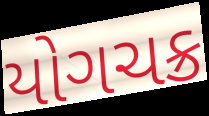
યોગચક્ર